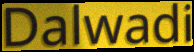
Dalwadi